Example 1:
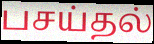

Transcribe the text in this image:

பசய்தல்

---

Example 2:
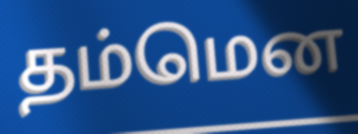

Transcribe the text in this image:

தம்மென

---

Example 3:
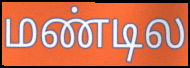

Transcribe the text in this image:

மண்டில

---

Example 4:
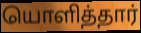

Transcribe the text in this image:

யொளித்தார்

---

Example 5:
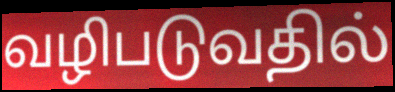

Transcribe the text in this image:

வழிபடுவதில்